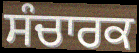
ਸੰਚਾਰਕ